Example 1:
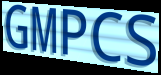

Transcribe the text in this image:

GMPCS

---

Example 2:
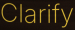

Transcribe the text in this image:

Clarify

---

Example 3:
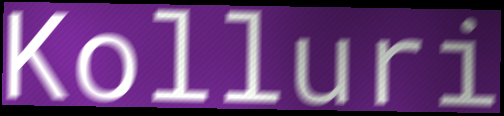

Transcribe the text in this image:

Kolluri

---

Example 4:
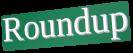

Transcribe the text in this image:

Roundup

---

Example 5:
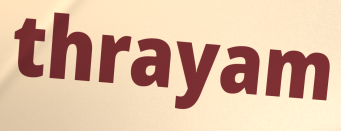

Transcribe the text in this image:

thrayam